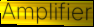
Amplifier